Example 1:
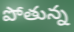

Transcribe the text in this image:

పోతున్న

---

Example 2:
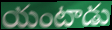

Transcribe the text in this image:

యంటాడు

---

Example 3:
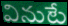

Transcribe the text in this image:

వినుటే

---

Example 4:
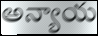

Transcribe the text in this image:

అన్యాయ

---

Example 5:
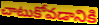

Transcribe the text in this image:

చాటుకోవడానికి